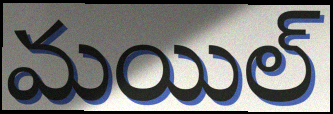
మయిల్